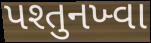
પશ્તુનખ્વા